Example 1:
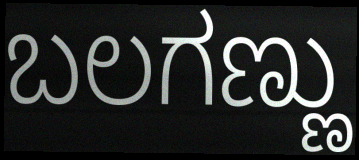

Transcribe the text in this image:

ಬಲಗಣ್ಣು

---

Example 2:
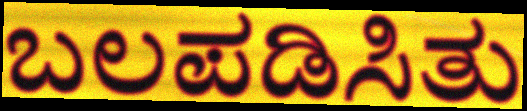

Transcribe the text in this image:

ಬಲಪಡಿಸಿತು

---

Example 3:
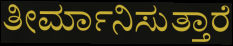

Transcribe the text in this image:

ತೀರ್ಮಾನಿಸುತ್ತಾರೆ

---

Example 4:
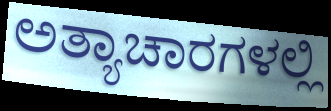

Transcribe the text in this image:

ಅತ್ಯಾಚಾರಗಳಲ್ಲಿ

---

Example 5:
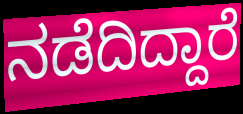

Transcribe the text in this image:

ನಡೆದಿದ್ದಾರೆ